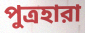
পুত্রহারা